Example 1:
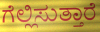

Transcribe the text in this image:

ಗೆಲ್ಲಿಸುತ್ತಾರೆ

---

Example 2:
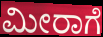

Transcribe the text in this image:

ಮೀರಾಗೆ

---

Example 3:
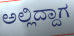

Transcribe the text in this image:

ಅಲ್ಲಿದ್ದಾಗ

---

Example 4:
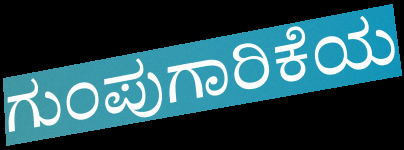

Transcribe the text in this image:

ಗುಂಪುಗಾರಿಕೆಯ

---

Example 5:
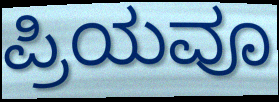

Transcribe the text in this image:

ಪ್ರಿಯವೂ